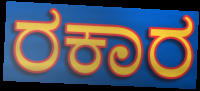
ರಕಾರ